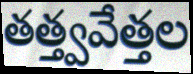
తత్త్వవేత్తల